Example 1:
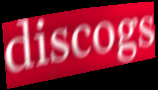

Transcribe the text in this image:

discogs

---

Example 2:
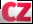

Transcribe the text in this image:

cz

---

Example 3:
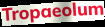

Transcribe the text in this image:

Tropaeolum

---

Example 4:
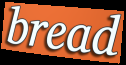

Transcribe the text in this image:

bread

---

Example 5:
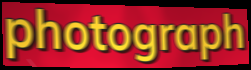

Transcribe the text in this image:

photograph